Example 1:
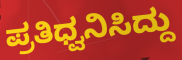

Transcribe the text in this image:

ಪ್ರತಿಧ್ವನಿಸಿದ್ದು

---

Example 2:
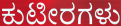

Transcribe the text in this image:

ಕುಟೀರಗಳು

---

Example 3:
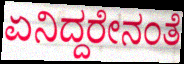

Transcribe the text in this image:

ಏನಿದ್ದರೇನಂತೆ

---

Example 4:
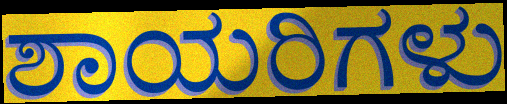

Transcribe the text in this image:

ಶಾಯರಿಗಳು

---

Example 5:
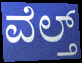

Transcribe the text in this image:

ವೆಲ್ತ್